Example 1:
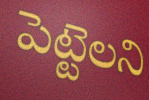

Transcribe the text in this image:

పెట్టెలని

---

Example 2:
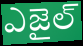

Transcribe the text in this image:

ఎజైల్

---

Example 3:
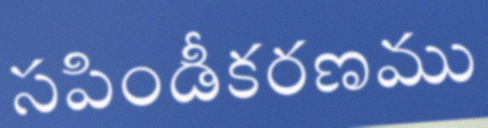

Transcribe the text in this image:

సపిండీకరణము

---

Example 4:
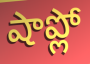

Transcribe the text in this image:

షాప్లో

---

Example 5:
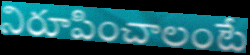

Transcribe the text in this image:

నిరూపించాలంటే